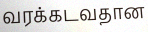
வரக்கடவதான